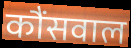
कौंसवाल